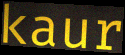
kaur